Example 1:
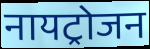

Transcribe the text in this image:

नायट्रोजन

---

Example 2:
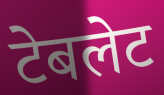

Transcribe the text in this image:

टेबलेट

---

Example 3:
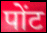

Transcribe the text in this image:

पोंट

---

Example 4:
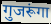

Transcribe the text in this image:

गुजरूंगा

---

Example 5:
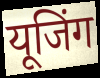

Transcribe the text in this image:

यूजिंग